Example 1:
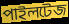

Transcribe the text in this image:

পাইলটেজ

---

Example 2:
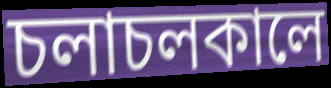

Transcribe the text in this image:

চলাচলকালে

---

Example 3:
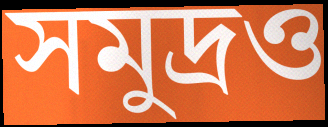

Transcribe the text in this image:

সমুদ্রও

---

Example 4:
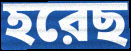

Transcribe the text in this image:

হরেছ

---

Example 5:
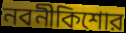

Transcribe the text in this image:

নবনীকিশোর